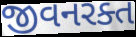
જીવનરક્ત